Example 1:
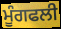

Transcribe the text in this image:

ਮੂੰਗਫਲੀ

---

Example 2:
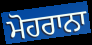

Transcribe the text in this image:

ਮੋਹਰਾਨਾ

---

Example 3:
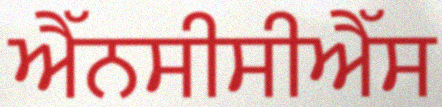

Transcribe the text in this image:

ਐੱਨਸੀਸੀਐੱਸ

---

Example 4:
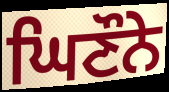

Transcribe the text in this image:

ਘਿਣੌਨੇ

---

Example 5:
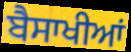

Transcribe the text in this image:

ਬੈਸਾਖੀਆਂ